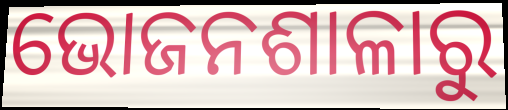
ଭୋଜନଶାଳାରୁ